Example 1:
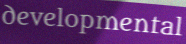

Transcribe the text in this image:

developmental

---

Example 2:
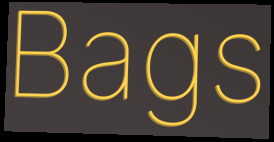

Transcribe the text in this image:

Bags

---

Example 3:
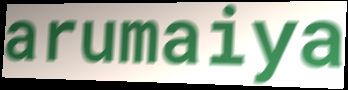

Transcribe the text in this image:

arumaiya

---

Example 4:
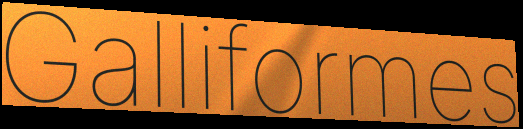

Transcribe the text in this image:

Galliformes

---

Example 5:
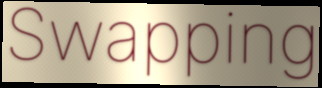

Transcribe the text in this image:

Swapping